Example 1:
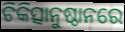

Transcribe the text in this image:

ଚିକିତ୍ସାନୁଷ୍ଠାନରେ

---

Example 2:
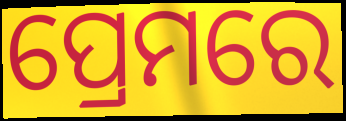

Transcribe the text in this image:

ପ୍ରେମରେ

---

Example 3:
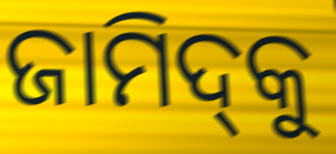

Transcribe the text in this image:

ଜାମିଦ୍‌କୁ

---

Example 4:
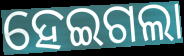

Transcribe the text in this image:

ହେଇଗଲା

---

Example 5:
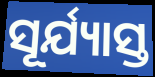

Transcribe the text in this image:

ସୂର୍ଯ୍ୟାସ୍ତ